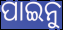
ପାଇନୁ